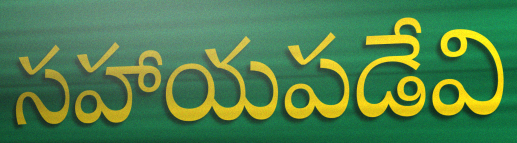
సహాయపడేవి